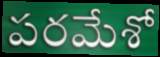
పరమేశో